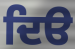
ਦਿੳ